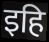
इहि